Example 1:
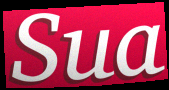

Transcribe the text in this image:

Sua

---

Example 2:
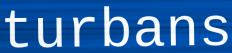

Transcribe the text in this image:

turbans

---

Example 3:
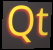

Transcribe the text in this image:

Qt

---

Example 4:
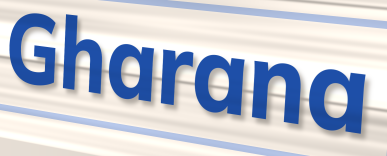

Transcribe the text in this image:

Gharana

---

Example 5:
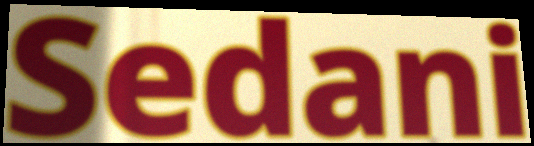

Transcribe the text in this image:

Sedani